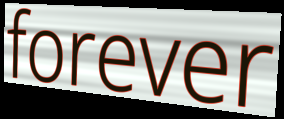
forever